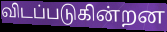
விடப்படுகின்றன